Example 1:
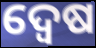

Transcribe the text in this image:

ଦ୍ବେଷ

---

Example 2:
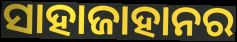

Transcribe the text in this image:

ସାହାଜାହାନର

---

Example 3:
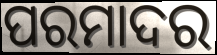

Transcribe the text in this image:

ପରମାଦର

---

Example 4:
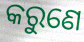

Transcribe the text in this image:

କରୁଣେ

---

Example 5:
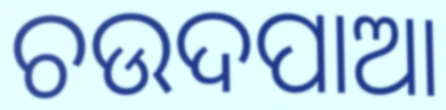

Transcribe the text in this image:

ଚଉଦପାଆ